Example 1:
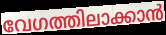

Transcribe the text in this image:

വേഗത്തിലാക്കാൻ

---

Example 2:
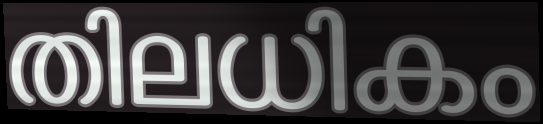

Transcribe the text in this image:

തിലധികം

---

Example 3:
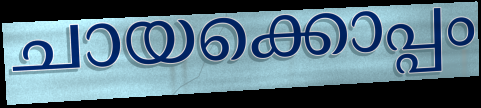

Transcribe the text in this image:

ചായക്കൊപ്പം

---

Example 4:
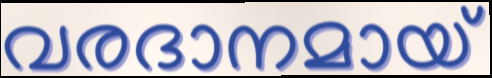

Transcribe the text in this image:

വരദാനമായ്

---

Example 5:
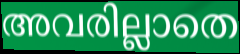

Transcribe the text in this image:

അവരില്ലാതെ